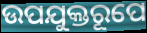
ଉପଯୁକ୍ତରୂପେ